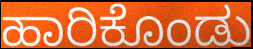
ಹಾರಿಕೊಂಡು